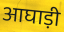
आघाड़ी